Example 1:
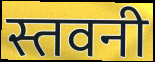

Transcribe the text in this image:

स्तवनी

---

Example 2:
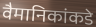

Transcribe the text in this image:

वैमानिकांकडे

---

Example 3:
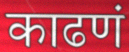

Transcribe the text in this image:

काढणं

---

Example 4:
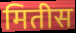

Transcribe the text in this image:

मितीस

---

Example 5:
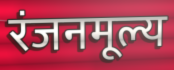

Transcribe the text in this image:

रंजनमूल्य